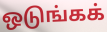
ஒடுங்கக்